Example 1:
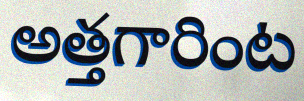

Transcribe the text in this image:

అత్తగారింట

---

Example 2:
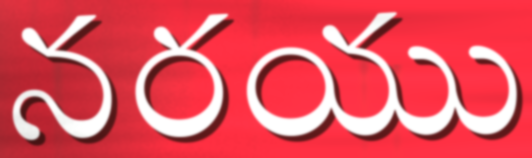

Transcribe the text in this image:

నరయు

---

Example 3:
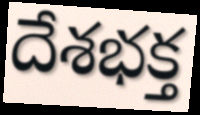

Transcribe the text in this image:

దేశభక్త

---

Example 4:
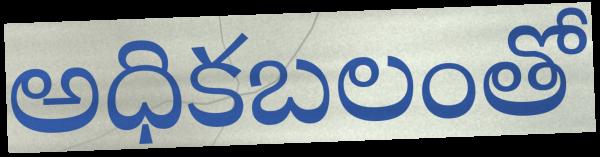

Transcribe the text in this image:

అధికబలంతో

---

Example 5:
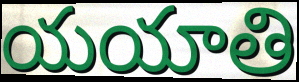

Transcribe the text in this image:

యయాతి